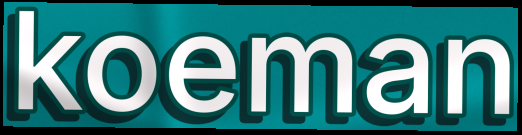
koeman